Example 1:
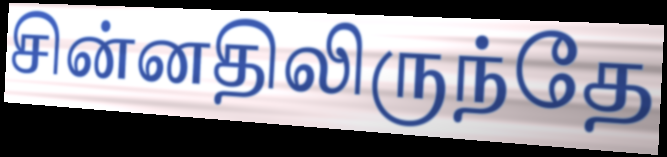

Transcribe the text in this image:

சின்னதிலிருந்தே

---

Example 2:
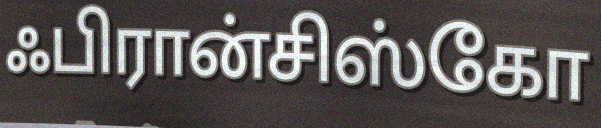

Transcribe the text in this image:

ஃபிரான்சிஸ்கோ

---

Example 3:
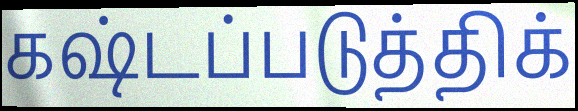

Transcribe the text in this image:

கஷ்டப்படுத்திக்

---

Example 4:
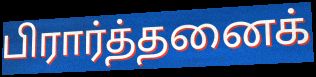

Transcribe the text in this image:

பிரார்த்தனைக்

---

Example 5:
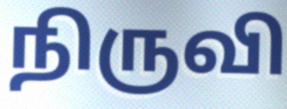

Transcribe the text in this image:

நிருவி